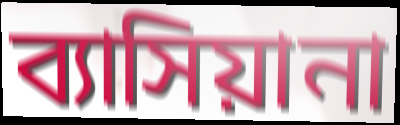
ব্যাসিয়ানা